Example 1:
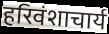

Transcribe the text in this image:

हरिवंशाचार्य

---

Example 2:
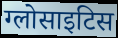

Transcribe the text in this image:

ग्लोसाइटिस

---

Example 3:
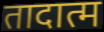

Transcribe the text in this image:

तादात्म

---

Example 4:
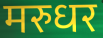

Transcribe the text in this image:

मरुधर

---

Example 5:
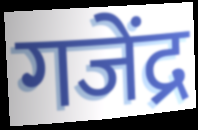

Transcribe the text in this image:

गजेंद्र